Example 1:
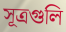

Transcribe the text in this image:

সূত্রগুলি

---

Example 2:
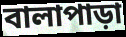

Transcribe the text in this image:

বালাপাড়া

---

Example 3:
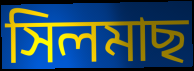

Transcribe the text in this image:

সিলমাছ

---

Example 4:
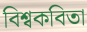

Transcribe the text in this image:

বিশ্বকবিতা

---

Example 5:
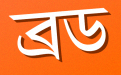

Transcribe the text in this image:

ব্রড